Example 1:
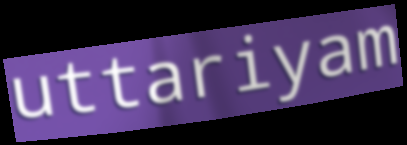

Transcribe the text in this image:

uttariyam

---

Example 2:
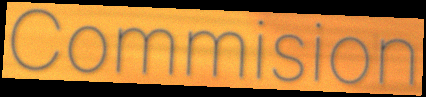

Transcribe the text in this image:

Commision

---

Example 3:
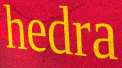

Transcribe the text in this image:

hedra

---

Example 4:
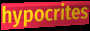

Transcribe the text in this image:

hypocrites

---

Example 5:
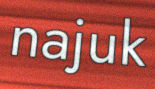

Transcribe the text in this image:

najuk